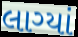
લાગ્યાં